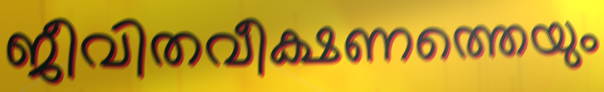
ജീവിതവീക്ഷണത്തെയും